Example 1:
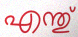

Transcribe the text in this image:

എന്തു്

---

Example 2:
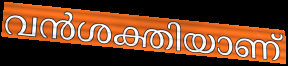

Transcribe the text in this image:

വൻശക്തിയാണ്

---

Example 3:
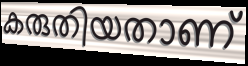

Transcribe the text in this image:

കരുതിയതാണ്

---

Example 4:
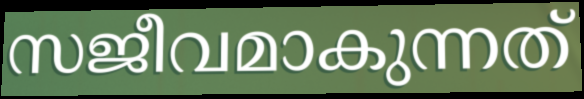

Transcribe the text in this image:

സജീവമാകുന്നത്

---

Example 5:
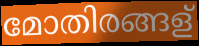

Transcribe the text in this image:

മോതിരങ്ങള്